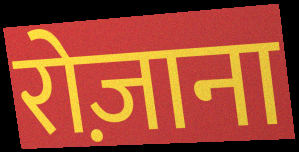
रोज़ाना